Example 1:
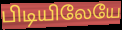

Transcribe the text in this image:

பிடியிலேயே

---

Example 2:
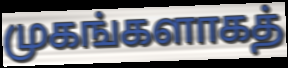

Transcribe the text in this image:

முகங்களாகத்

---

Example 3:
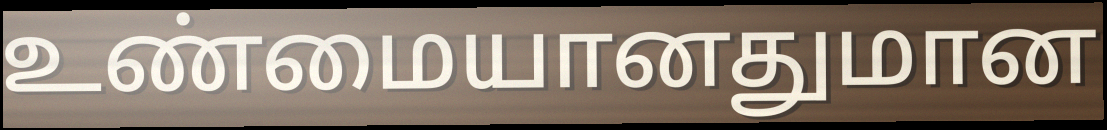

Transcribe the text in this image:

உண்மையானதுமான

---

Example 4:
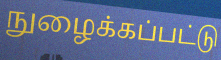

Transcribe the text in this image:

நுழைக்கப்பட்டு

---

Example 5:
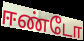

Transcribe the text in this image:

ஈண்டோ